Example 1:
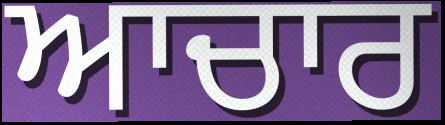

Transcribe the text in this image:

ਆਚਾਰ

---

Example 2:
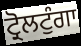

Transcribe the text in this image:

ਟ੍ਰੋਲਟੁੰਗਾ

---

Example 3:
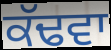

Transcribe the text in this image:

ਕੱਢਵਾ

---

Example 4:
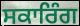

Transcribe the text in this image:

ਸਕਾਰਿੰਗ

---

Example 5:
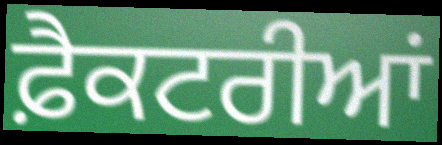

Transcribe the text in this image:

ਫ਼ੈਕਟਰੀਆਂ